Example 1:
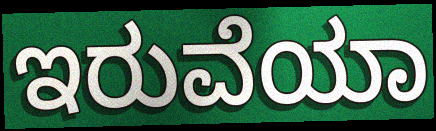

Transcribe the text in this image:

ಇರುವೆಯಾ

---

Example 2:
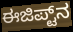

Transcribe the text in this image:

ಈಜಿಪ್ಟ್‌ನ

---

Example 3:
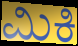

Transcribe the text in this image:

ಮಿಕಿ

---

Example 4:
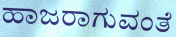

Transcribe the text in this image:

ಹಾಜರಾಗುವಂತೆ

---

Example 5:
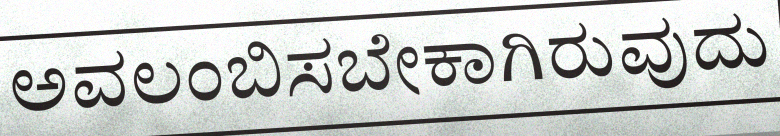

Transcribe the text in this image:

ಅವಲಂಬಿಸಬೇಕಾಗಿರುವುದು